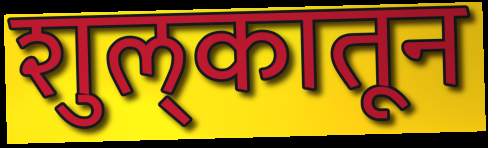
शुल्कातून